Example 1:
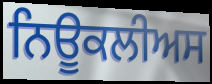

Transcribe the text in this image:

ਨਿਊਕਲੀਅਸ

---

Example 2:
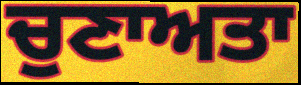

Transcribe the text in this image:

ਚੁਣਾਅਤਾ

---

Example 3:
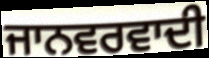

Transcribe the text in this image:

ਜਾਨਵਰਵਾਦੀ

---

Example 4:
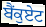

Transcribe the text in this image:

ਬੈਂਕੁਏਟ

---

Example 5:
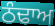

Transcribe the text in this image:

ਠੰਢਾਅ